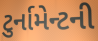
ટુર્નામેન્ટની